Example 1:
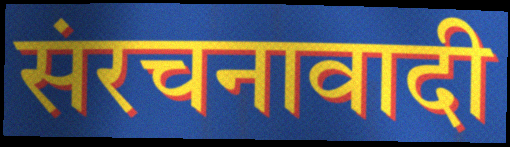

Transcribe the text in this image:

संरचनावादी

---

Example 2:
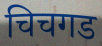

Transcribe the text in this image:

चिचगड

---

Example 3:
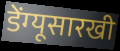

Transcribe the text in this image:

डेंग्यूसारखी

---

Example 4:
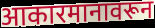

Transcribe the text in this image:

आकारमानावरून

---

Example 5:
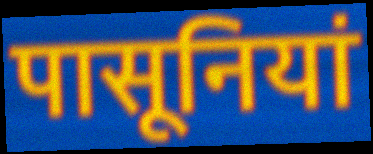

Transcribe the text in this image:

पासूनियां